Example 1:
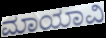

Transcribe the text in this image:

ಮಾಯಾವಿ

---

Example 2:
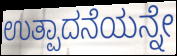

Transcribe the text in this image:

ಉತ್ಪಾದನೆಯನ್ನೇ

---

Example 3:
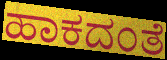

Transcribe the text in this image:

ಹಾಕದಂತೆ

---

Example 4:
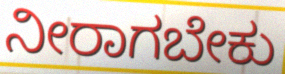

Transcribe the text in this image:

ನೀರಾಗಬೇಕು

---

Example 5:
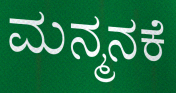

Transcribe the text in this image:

ಮನ್ಮನಕೆ